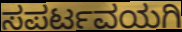
ಸಪರ್ಟವಯಗಿ